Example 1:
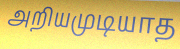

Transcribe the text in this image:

அறியமுடியாத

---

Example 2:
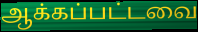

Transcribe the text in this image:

ஆக்கப்பட்டவை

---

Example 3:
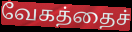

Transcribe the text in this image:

வேகத்தைச்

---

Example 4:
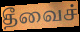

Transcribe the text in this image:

தீவைச்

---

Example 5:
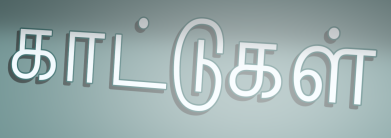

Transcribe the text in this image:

காட்டுகள்